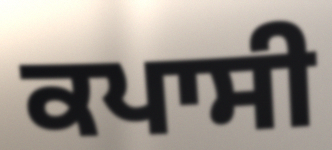
ਕਪਾਸੀ